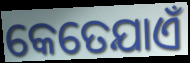
କେତେଯାଏଁ